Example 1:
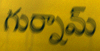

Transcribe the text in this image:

గుర్నామ్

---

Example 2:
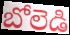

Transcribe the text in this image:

బోలెడి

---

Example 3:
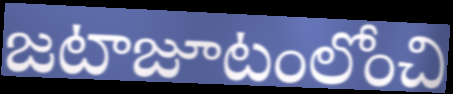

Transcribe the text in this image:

జటాజూటంలోంచి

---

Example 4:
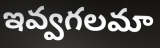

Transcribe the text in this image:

ఇవ్వగలమా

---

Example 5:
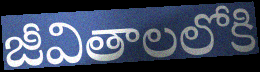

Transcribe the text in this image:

జీవితాలలోకి